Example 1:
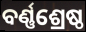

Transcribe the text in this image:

ବର୍ଣ୍ଣଶ୍ରେଷ୍ଠ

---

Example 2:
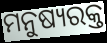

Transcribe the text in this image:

ମନୁଷ୍ଯରକ୍ତ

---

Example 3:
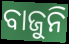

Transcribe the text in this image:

ବାଜୁନି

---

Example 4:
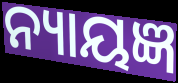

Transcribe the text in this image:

ନ୍ୟାୟଜ୍ଞ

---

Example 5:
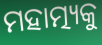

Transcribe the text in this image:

ମହାତ୍ମ୍ୟକୁ